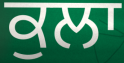
ਕੁਲਾ